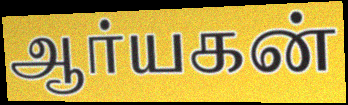
ஆர்யகன்